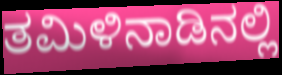
ತಮಿಳಿನಾಡಿನಲ್ಲಿ